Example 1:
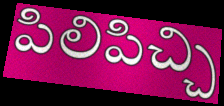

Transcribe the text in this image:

పిలిపిచ్చి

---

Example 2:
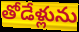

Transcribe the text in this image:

తోడేళ్లును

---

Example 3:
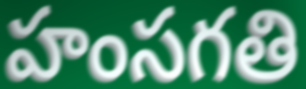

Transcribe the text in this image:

హంసగతి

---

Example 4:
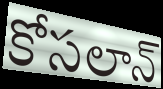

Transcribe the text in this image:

కోసలాన్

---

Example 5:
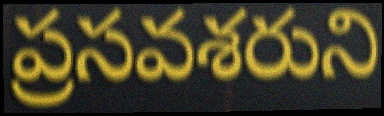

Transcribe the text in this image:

ప్రసవశరుని